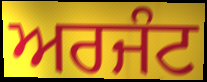
ਅਰਜੰਟ